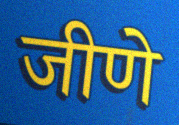
जीणे